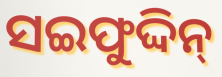
ସଇଫୁଦ୍ଦିନ୍